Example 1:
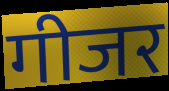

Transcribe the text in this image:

गीजर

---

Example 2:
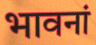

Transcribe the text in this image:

भावनां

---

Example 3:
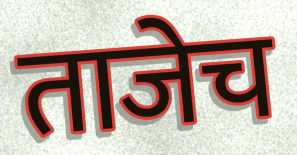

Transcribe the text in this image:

ताजेच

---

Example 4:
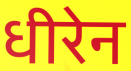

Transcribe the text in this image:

धीरेन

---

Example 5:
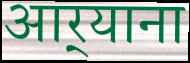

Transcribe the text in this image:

आर्याना